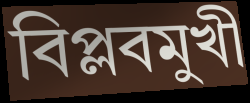
বিপ্লবমুখী